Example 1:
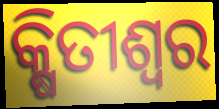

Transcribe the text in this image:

କ୍ଷିତୀଶ୍ୱର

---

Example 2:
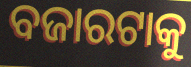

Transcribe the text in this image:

ବଜାରଟାକୁ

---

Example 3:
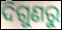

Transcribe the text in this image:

ଦିଗୁଣରୁ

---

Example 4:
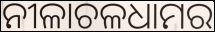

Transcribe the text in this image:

ନୀଳାଚଳଧାମର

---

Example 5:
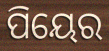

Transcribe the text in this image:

ପିୟେର